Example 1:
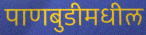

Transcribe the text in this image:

पाणबुडीमधील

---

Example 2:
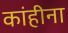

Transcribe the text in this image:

कांहीना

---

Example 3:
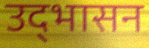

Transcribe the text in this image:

उद्भासन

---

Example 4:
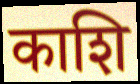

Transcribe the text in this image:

काशि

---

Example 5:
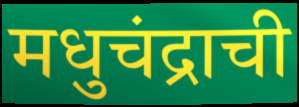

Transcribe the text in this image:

मधुचंद्राची